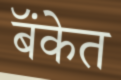
बॅंकेत